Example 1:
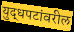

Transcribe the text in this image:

युद्धपटांवरील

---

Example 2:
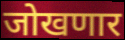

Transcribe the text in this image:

जोखणार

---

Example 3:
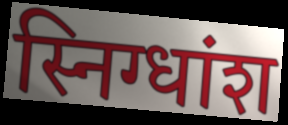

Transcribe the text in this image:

स्निग्धांश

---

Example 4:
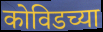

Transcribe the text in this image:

कोविडच्या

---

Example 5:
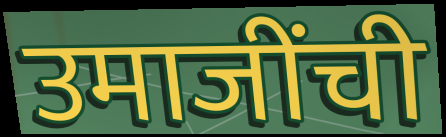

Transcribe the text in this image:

उमाजींची